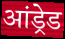
आंड्रेड